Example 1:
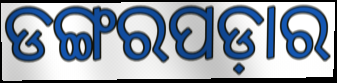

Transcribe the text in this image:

ଡଙ୍ଗରପଡ଼ାର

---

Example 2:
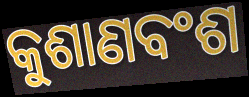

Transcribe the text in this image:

କୁଶାଣବଂଶ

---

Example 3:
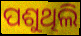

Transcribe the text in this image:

ପଶୁଥିଲି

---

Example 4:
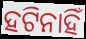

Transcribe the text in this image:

ହଟିନାହିଁ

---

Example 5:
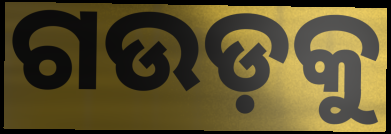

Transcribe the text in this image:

ଗଉଡ଼କୁ